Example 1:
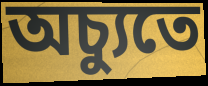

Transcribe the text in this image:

অচ্যুতে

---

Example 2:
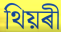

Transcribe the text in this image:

থিয়ৰী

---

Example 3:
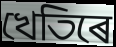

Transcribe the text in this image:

খেতিৰে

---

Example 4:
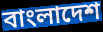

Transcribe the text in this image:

বাংলাদেশ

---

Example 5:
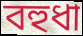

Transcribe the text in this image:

বহুধা